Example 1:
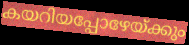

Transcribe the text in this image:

കയറിയപ്പോഴേയ്ക്കും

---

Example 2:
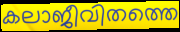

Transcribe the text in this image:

കലാജീവിതത്തെ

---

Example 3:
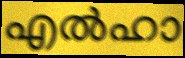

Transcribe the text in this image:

എൽഹാ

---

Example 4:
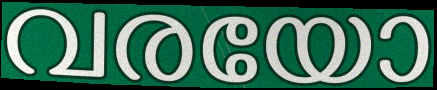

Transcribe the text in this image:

വരയോ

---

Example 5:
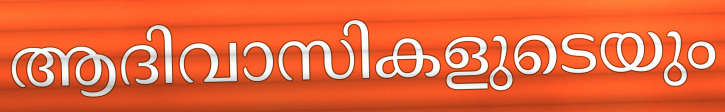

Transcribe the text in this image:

ആദിവാസികളുടെയും